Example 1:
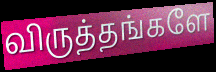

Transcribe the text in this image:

விருத்தங்களே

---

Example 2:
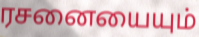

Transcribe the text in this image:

ரசனையையும்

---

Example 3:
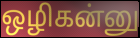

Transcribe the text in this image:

ஒழிகன்னு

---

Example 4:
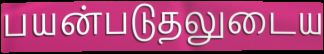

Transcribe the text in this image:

பயன்படுதலுடைய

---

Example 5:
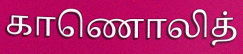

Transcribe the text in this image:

காணொலித்